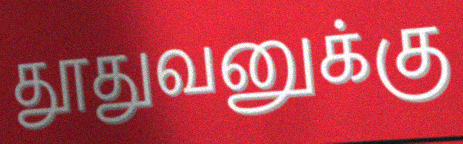
தூதுவனுக்கு